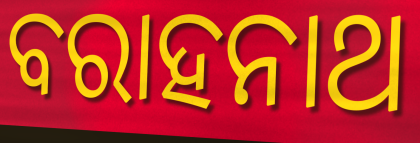
ବରାହନାଥ